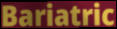
Bariatric